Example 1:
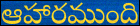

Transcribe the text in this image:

ఆహారముంది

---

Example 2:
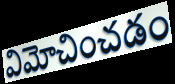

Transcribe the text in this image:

విమోచించడం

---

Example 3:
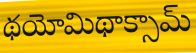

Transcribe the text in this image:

థయోమిథాక్సామ్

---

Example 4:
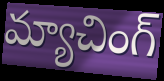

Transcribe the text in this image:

మ్యాచింగ్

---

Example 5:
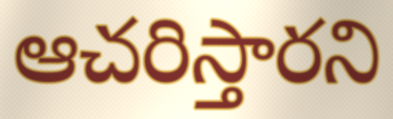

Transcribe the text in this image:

ఆచరిస్తారని